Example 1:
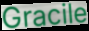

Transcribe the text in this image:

Gracile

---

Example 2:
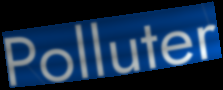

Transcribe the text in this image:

Polluter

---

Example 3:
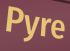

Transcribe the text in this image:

Pyre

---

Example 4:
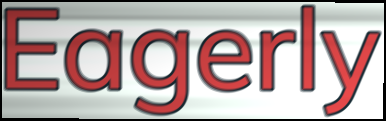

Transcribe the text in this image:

Eagerly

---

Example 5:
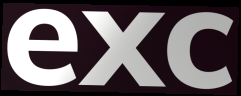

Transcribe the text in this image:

exc